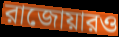
রাজোয়ারও